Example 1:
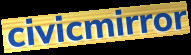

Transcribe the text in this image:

civicmirror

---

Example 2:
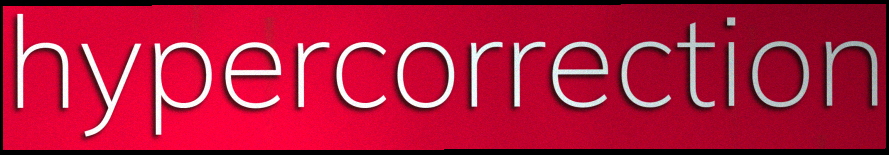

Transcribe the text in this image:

hypercorrection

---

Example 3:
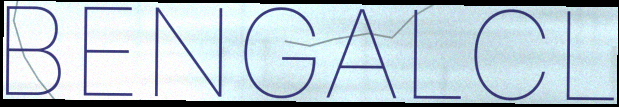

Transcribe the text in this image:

BENGALCL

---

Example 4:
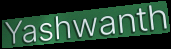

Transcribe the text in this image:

Yashwanth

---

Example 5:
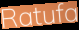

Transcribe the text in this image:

Ratufa